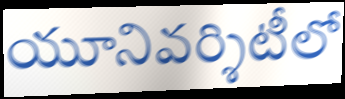
యూనివర్శిటీలో